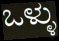
ಒಳ್ಳು